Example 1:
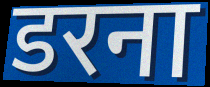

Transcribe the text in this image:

डरना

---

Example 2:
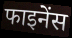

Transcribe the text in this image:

फाइनेंस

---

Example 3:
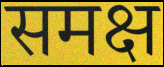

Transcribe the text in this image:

समक्ष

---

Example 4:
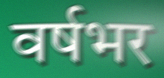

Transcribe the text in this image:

वर्षभर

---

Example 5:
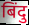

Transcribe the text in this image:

बिंदु